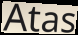
Atas